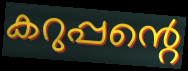
കറുപ്പന്റെ